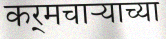
कर्मचाऱ्याच्या